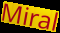
Miral